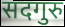
सदगुरु